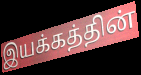
இயக்கத்தின்